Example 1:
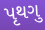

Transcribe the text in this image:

પૃથગુ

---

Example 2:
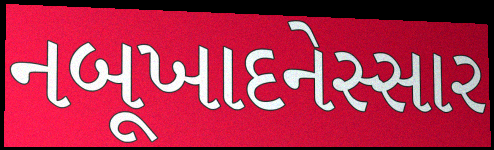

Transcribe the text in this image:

નબૂખાદનેસ્સાર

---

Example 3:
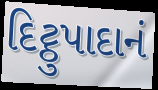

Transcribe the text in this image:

દિટ્ઠુપાદાનં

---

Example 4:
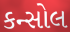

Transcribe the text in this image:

કન્સોલ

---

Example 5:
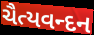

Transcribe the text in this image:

ચૈત્યવન્દન